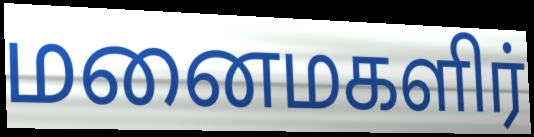
மனைமகளிர்